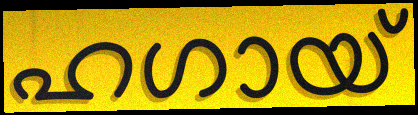
ഹഗായ്